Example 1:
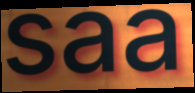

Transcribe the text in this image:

saa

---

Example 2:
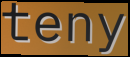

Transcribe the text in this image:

teny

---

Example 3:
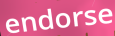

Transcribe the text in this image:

endorse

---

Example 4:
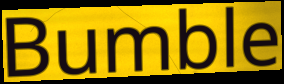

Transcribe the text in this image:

Bumble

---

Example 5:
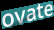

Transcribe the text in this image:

ovate